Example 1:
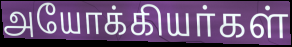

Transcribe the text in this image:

அயோக்கியர்கள்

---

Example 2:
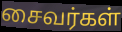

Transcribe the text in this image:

சைவர்கள்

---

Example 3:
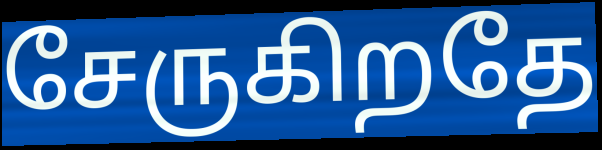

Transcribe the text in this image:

சேருகிறதே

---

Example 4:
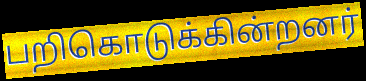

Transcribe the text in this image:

பறிகொடுக்கின்றனர்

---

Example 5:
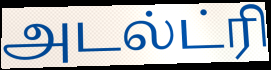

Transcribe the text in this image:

அடல்ட்ரி